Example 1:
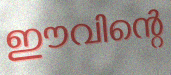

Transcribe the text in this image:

ഈവിന്റെ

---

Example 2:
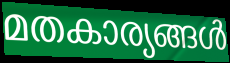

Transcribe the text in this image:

മതകാര്യങ്ങൾ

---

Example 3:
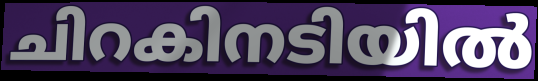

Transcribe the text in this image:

ചിറകിനടിയിൽ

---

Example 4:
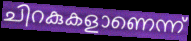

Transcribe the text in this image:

ചിറകുകളാണെന്ന്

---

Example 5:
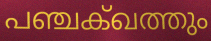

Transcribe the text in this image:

പഞ്ചക്ഖത്തും